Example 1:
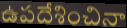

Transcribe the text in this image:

ఉపదేశించినా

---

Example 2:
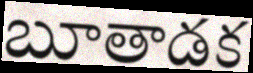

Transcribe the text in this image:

బూతాడక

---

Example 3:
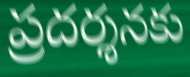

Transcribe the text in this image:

ప్రదర్శనకు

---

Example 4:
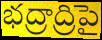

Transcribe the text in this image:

భద్రాద్రిపై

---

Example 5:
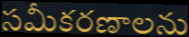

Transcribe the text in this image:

సమీకరణాలను